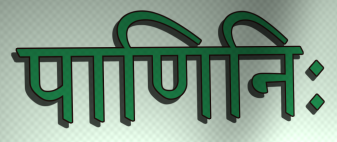
पाणिनिः